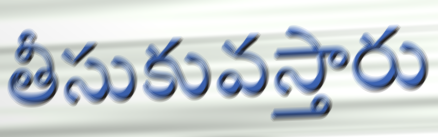
తీసుకువస్తారు